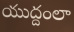
యుద్దంలా